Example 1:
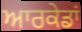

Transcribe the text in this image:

ਆਰਕੇਡਾਂ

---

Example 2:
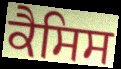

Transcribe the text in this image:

ਕੈਸਿਸ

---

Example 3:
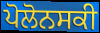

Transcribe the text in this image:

ਪੋਲੋਨਸਕੀ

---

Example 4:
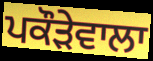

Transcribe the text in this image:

ਪਕੌੜੇਵਾਲਾ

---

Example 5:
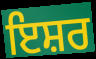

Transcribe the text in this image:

ਇਸ਼ਰ